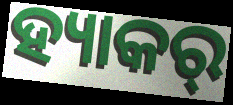
ହ୍ୟାକର୍